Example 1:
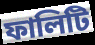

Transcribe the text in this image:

ফালিটি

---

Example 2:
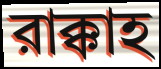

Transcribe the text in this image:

রাক্কাহ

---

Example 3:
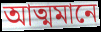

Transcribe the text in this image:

আত্মমানে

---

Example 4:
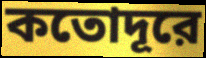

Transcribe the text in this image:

কতোদূরে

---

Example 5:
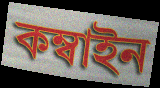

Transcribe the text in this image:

কম্বাইন